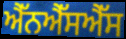
ਐੱਨਐੱਸਐੱਸ